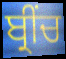
ਬ੍ਰੀਂਚ